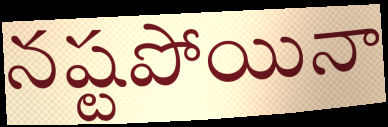
నష్టపోయినా